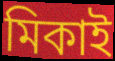
মিকাই